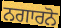
ਨਗਾਰਨੋ